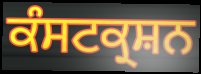
ਕੰਸਟਕ੍ਰਸ਼ਨ